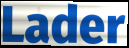
Lader